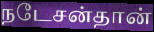
நடேசன்தான்